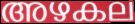
അഴകല